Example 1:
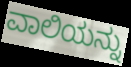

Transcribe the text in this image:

ವಾಲಿಯನ್ನು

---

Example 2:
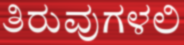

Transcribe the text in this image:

ತಿರುವುಗಳಲಿ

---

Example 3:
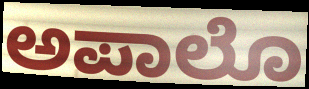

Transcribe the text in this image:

ಅಪಾಲೊ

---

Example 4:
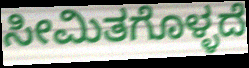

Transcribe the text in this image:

ಸೀಮಿತಗೊಳ್ಳದೆ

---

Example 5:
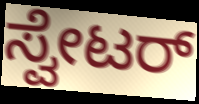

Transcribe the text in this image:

ಸ್ವೇಟರ್